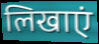
लिखाएं